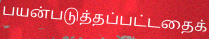
பயன்படுத்தப்பட்டதைக்